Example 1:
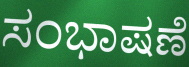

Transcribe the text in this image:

ಸಂಭಾಷಣೆ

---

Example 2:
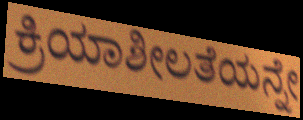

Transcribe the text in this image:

ಕ್ರಿಯಾಶೀಲತೆಯನ್ನೇ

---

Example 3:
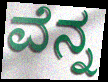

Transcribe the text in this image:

ವೆನ್ನ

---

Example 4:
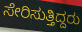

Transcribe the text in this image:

ಸೇರಿಸುತ್ತಿದ್ದರು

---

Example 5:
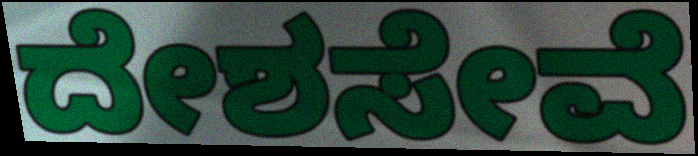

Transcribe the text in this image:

ದೇಶಸೇವೆ